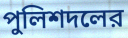
পুলিশদলের